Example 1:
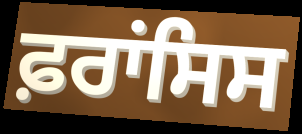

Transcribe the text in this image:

ਫ਼ਰਾਂਸਿਸ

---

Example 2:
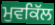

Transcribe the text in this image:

ਮੁਵਕਿੱਲ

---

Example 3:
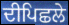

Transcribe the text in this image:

ਦੀਪਿਛਲੇ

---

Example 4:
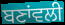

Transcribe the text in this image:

ਬਣਾਂਵਲੀ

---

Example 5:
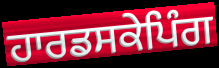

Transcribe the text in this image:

ਹਾਰਡਸਕੇਪਿੰਗ